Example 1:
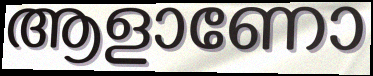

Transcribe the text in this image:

ആളാണോ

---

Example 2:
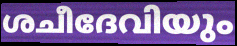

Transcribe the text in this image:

ശചീദേവിയും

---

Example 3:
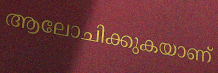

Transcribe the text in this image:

ആലോചിക്കുകയാണ്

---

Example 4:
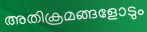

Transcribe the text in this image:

അതിക്രമങ്ങളോടും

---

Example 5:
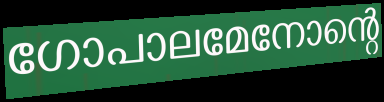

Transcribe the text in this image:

ഗോപാലമേനോന്റെ